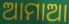
ଆମାଆ